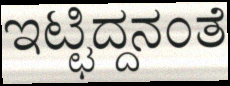
ಇಟ್ಟಿದ್ದನಂತೆ